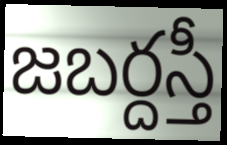
జబర్దస్తీ